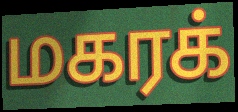
மகரக்